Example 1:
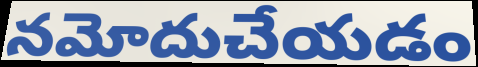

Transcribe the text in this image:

నమోదుచేయడం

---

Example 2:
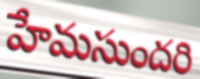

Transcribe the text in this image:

హేమసుందరి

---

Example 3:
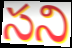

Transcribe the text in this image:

సని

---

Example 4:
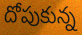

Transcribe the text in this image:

దోపుకున్న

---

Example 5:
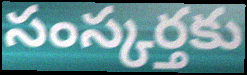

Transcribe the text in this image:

సంస్కర్తకు